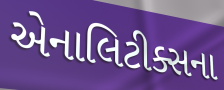
એનાલિટીક્સના